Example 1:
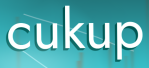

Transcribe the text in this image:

cukup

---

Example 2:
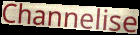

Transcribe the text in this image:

Channelise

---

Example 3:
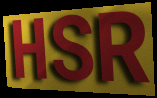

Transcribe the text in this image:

HSR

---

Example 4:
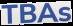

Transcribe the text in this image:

TBAs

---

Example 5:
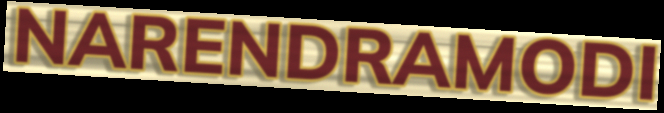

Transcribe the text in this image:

NARENDRAMODI